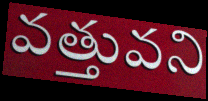
వత్తువని